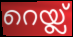
റെയ്ല്